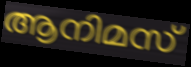
ആനിമസ്